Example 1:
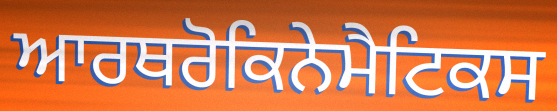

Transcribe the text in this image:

ਆਰਥਰੋਕਿਨੇਮੈਟਿਕਸ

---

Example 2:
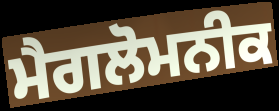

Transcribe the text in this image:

ਮੈਗਲੋਮਨੀਕ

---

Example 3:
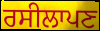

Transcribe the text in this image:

ਰਸੀਲਾਪਣ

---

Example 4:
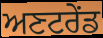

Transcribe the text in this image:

ਅਣਟਰੇਂਡ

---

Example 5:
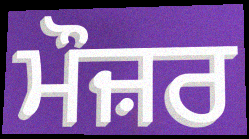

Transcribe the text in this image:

ਮੌਜ਼ਰ